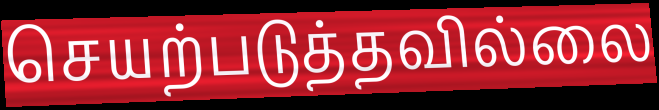
செயற்படுத்தவில்லை